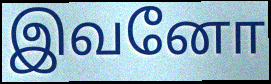
இவனோ